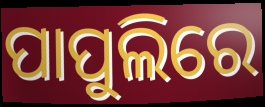
ପାପୁଲିରେ